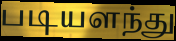
படியளந்து